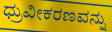
ಧ್ರುವೀಕರಣವನ್ನು